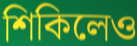
শিকিলেও